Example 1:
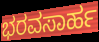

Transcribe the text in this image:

ಭರವಸಾರ್ಹ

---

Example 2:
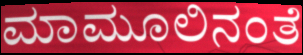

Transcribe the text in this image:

ಮಾಮೂಲಿನಂತೆ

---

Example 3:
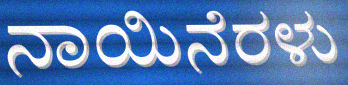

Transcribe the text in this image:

ನಾಯಿನೆರಳು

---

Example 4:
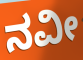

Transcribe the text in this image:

ನವೀ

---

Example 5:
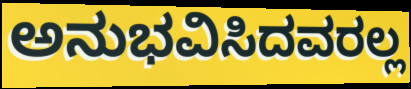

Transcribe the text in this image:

ಅನುಭವಿಸಿದವರಲ್ಲ